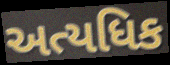
અત્યધિક